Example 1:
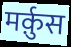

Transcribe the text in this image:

मर्क़ुस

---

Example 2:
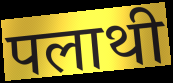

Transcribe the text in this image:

पलाथी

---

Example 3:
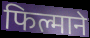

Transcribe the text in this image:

फिल्‍माने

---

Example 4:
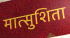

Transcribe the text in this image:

मात्सुशिता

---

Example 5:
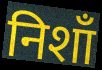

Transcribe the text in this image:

निशाँ